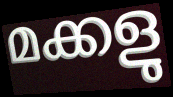
മക്കളു